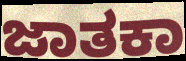
ಜಾತಕಾ